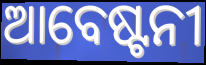
ଆବେଷ୍ଟନୀ